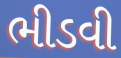
ભીડવી